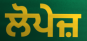
ਲੋਪੇਜ਼